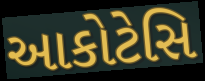
આકોટેસિ